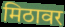
मिठावर